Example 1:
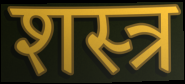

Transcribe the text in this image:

शस्त्र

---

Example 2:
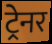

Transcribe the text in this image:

ट्रेनर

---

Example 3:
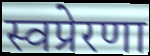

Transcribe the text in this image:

स्वप्रेरणा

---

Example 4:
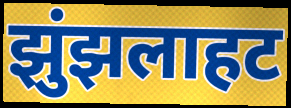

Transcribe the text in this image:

झुंझलाहट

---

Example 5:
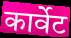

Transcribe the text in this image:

कार्वेट